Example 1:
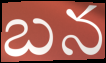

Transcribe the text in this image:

బన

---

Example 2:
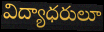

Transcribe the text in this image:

విద్యాధరులూ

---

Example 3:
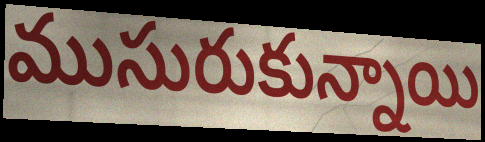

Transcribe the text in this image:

ముసురుకున్నాయి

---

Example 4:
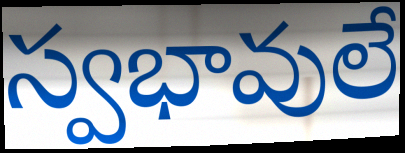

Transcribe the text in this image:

స్వభావులే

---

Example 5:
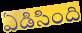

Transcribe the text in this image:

ఏడిసింది